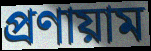
প্রণায়াম